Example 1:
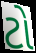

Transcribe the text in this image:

ટો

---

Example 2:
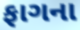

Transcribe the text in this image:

ફાગના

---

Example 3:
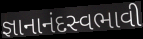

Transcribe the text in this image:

જ્ઞાનાનંદસ્વભાવી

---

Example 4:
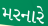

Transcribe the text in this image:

મરનારે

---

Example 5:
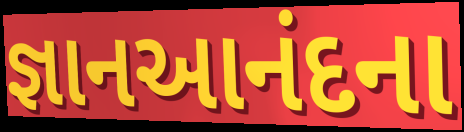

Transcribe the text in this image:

જ્ઞાનઆનંદના